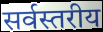
सर्वस्तरीय